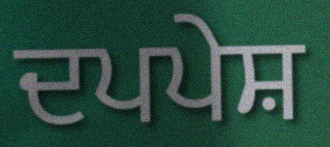
ਦਪਪੇਸ਼